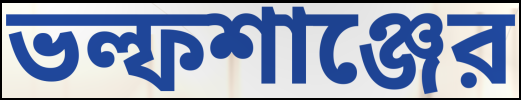
ভল্ফশাঞ্জের